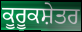
ਕੂਰੂਕਸ਼ੇਤਰ